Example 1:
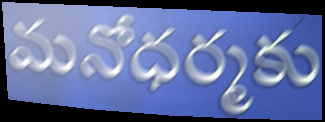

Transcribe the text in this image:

మనోధర్మకు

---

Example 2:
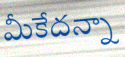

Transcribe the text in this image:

మీకేదన్నా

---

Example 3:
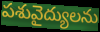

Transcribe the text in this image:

పశువైద్యులను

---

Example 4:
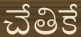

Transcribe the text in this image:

చేతికే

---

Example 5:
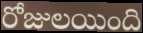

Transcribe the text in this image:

రోజులయింది